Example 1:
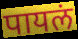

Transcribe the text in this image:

पायलं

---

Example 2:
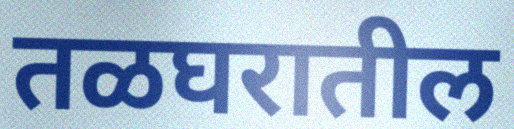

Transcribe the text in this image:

तळघरातील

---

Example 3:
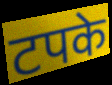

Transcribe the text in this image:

टपके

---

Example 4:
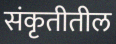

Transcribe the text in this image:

संकृतीतील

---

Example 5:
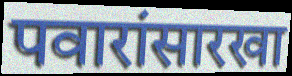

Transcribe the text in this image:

पवारांसारखा